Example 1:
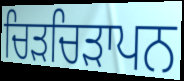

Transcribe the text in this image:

ਚਿੜਚਿੜਾਪਨ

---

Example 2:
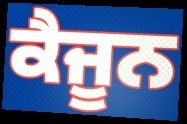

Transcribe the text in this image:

ਕੈਜੂਨ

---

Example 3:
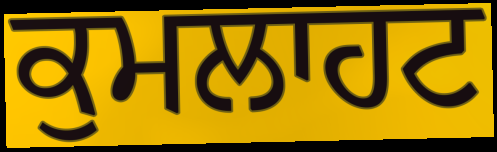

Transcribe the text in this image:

ਕੁਮਲਾਹਟ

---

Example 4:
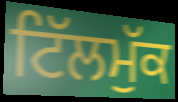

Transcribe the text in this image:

ਟਿੱਲਮੁੱਕ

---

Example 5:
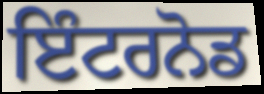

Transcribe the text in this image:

ਇੰਟਰਨੋਡ